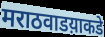
मराठवाडय़ाकडे